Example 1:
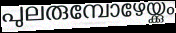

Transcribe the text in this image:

പുലരുമ്പോഴേയ്ക്കും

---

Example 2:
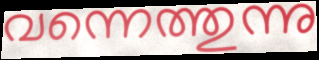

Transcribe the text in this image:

വന്നെത്തുന്നു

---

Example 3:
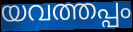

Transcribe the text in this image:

യവത്തപ്പം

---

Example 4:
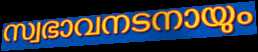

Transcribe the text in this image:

സ്വഭാവനടനായും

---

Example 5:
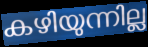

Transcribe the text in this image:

കഴിയുന്നില്ല